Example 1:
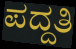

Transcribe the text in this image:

ಪದ್ದತಿ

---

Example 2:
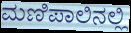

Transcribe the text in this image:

ಮಣಿಪಾಲಿನಲ್ಲಿ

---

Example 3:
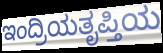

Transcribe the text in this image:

ಇಂದ್ರಿಯತೃಪ್ತಿಯ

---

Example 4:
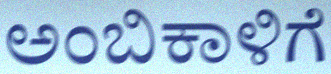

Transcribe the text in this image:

ಅಂಬಿಕಾಳಿಗೆ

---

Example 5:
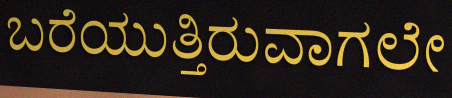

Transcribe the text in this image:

ಬರೆಯುತ್ತಿರುವಾಗಲೇ